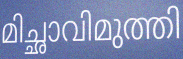
മിച്ഛാവിമുത്തി